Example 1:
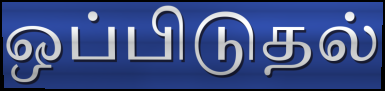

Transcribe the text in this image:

ஒப்பிடுதல்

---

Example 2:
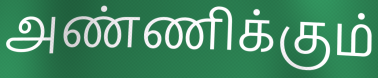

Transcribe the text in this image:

அண்ணிக்கும்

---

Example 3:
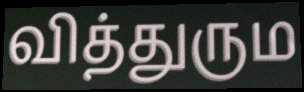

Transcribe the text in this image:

வித்துரும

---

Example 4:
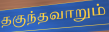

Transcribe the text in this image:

தகுந்தவாறும்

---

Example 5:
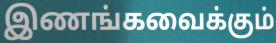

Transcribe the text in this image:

இணங்கவைக்கும்